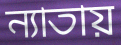
ন্যাতায়